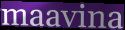
maavina